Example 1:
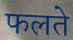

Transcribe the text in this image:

फलते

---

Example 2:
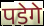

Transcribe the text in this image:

पडेगे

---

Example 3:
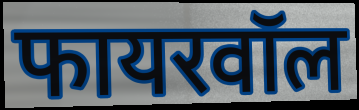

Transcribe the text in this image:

फायरवॉल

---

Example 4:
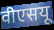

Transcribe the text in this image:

वीएसयू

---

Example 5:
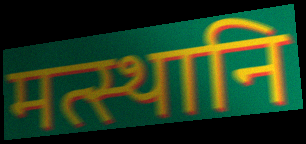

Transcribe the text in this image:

मत्स्थानि